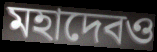
মহাদেবও